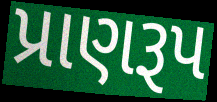
પ્રાણરૂપ